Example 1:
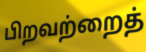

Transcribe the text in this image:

பிறவற்றைத்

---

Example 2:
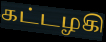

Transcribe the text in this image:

கட்டழகி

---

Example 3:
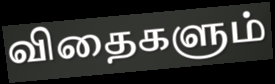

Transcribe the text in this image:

விதைகளும்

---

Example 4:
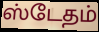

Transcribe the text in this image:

ஸ்டேதம்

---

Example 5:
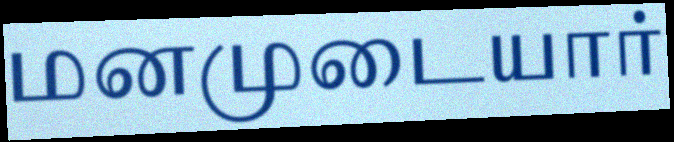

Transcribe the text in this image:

மனமுடையார்